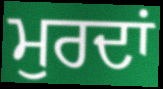
ਮੁਰਦਾਂ